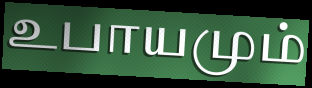
உபாயமும்